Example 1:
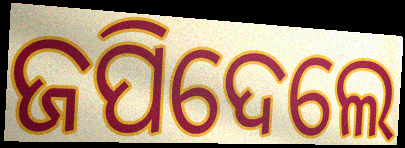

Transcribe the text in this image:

ଜପିଦେଲେ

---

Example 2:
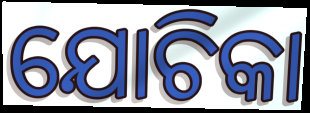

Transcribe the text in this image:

ଯୋଚିକା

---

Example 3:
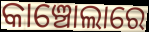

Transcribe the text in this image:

କାଞ୍ଚୋଲାରେ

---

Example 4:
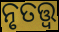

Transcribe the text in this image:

ନୃତତ୍ତ୍ଵ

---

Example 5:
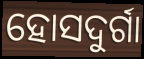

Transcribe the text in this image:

ହୋସଦୁର୍ଗା